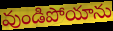
వుండిపోయాను